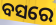
ବସରେ